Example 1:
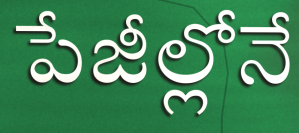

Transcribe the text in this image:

పేజీల్లోనే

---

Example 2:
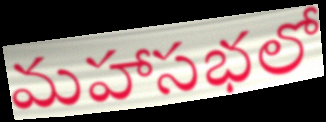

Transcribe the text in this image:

మహాసభలో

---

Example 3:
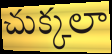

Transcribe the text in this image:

చుక్కలా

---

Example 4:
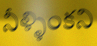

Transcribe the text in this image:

నీళ్ళింకని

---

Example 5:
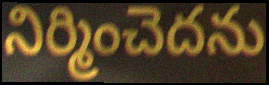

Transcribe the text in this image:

నిర్మించెదను